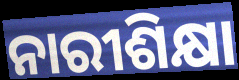
ନାରୀଶିକ୍ଷା